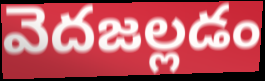
వెదజల్లడం